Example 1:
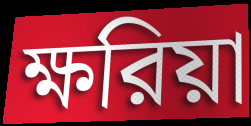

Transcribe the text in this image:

ক্ষরিয়া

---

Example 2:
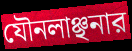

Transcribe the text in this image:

যৌনলাঞ্ছনার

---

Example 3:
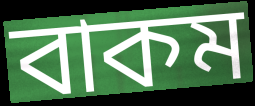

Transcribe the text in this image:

বাকম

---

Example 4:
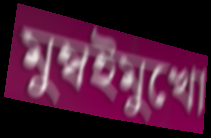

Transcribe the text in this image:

মুম্বইমুখো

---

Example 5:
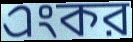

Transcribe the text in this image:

এংকর